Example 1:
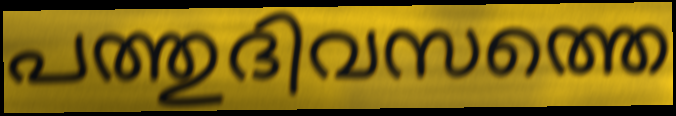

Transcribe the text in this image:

പത്തുദിവസത്തെ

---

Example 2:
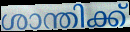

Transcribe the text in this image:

ശാന്തിക്ക്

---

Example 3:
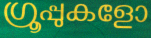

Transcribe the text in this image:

ഗ്രൂപ്പുകളോ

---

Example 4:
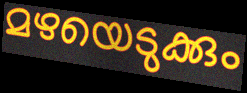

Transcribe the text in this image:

മഴയെടുക്കും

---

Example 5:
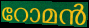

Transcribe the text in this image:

റോമൻ